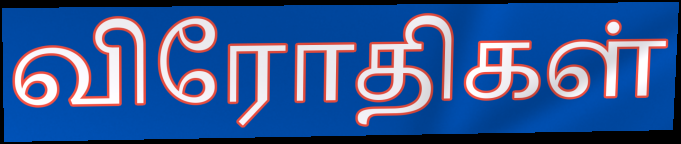
விரோதிகள்